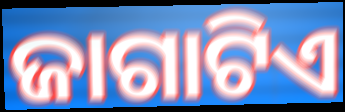
ଜାଗାଟିଏ